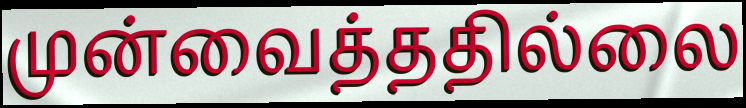
முன்வைத்ததில்லை